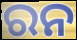
ରନ